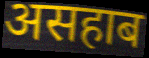
असहाब